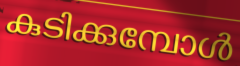
കുടിക്കുമ്പോൾ